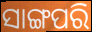
ସାଙ୍ଗପରି